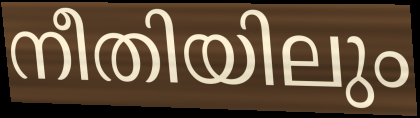
നീതിയിലും